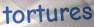
tortures